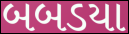
બબડયા